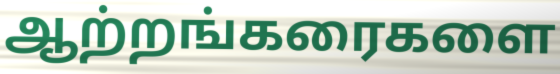
ஆற்றங்கரைகளை